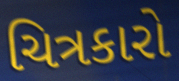
ચિત્રકારો